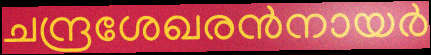
ചന്ദ്രശേഖരൻനായർ